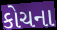
કોચના